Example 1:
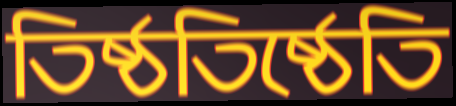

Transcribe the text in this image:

তিষ্ঠতিষ্ঠেতি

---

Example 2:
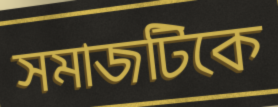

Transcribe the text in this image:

সমাজটিকে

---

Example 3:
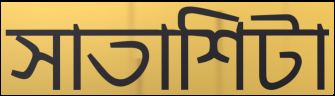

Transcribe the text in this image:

সাতাশিটা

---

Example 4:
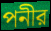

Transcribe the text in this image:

পনীর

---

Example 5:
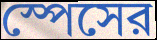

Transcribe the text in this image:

স্পেসের